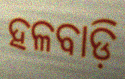
ହଳବାଡ଼ି